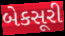
બેકસૂરી